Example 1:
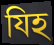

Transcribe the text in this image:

যিহ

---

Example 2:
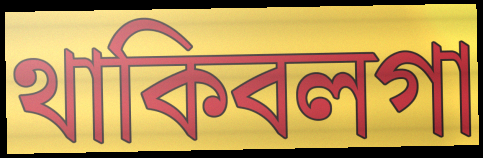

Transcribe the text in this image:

থাকিবলগা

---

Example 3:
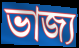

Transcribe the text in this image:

ভাজ্য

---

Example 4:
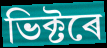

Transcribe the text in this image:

ভিক্টৰে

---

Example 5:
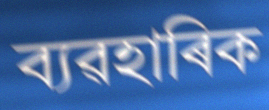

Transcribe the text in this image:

ব্য়ৱহাৰিক